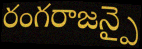
రంగరాజన్పై